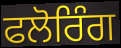
ਫਲੋਰਿੰਗ